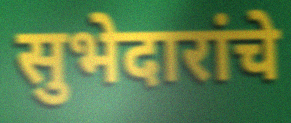
सुभेदारांचे